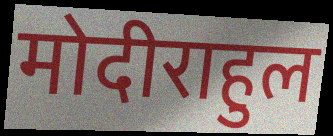
मोदीराहुल